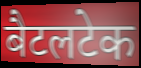
बैटलटेक